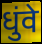
धुंवे